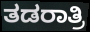
ತಡರಾತ್ರಿ